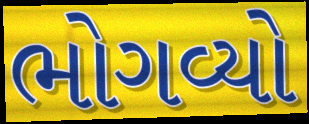
ભોગવ્યો